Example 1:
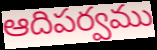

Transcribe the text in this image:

ఆదిపర్వము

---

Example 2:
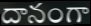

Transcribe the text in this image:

దానంగా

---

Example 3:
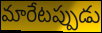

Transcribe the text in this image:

మారేటప్పుడు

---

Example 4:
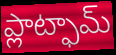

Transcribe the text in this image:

ప్లాట్ఫామ్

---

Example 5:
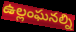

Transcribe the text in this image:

ఉల్లంఘనల్ని